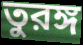
তুরঙ্গ